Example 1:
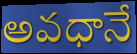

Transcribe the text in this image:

అవధానే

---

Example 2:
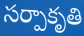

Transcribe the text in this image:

సర్పాకృతి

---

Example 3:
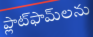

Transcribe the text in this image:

ప్లాట్‌ఫామ్‌లను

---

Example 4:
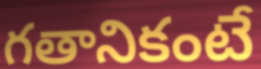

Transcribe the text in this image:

గతానికంటే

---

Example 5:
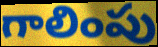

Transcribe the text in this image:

గాలింపు